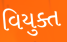
વિયુક્ત